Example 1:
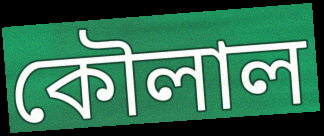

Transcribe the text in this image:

কৌলাল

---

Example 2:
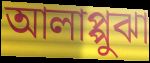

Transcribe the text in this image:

আলাপ্পুঝা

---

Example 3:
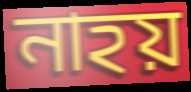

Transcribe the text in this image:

নাহয়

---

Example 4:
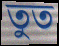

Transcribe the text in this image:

তুত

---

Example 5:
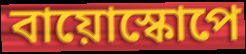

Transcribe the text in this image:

বায়োস্কোপে